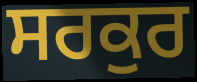
ਸਰਕੁਰ